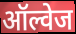
ऑल्वेज